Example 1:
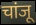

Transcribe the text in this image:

चांजू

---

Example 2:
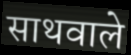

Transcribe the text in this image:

साथवाले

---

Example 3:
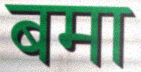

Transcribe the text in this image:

बमा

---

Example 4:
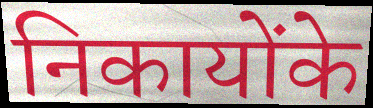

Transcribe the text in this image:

निकायोंके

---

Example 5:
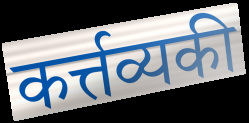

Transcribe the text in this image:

कर्त्तव्यकी